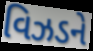
વિઝડને